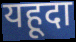
यहूदा